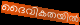
ദൈവികതയിൽ